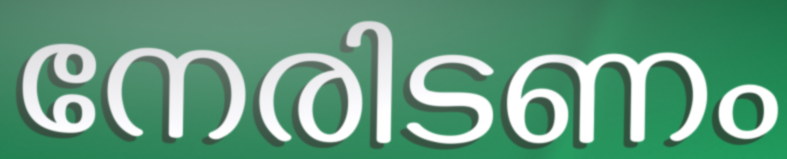
നേരിടണം